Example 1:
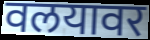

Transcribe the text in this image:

वलयावर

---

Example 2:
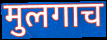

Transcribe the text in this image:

मुलगाच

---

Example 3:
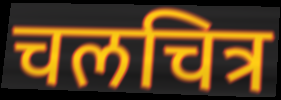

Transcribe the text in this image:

चलचित्र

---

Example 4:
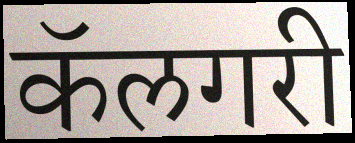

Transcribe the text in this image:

कॅलगरी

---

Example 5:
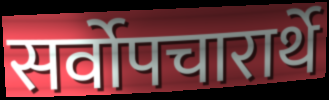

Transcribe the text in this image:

सर्वोपचारार्थे